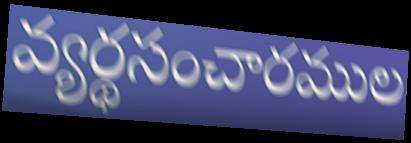
వ్యర్థసంచారముల